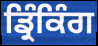
ਡ੍ਰਿੰਕਿੰਗ